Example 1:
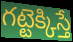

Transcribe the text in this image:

గట్టెక్కిస్తే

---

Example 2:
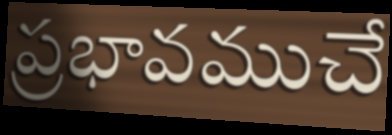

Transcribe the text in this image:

ప్రభావముచే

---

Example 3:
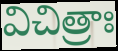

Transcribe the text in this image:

విచిత్రాః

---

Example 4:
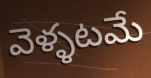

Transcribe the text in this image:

వెళ్ళటమే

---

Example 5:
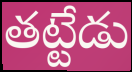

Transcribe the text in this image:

తట్టేడు